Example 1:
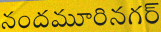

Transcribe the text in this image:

నందమూరినగర్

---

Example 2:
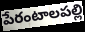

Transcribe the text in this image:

పేరంటాలపల్లి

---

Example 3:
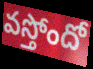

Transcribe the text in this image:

వస్తోందో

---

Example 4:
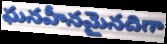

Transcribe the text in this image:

ఘనహీనమైనదిగా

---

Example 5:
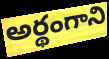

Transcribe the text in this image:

అర్థంగాని